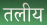
तलीय